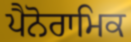
ਪੈਨੋਰਾਮਿਕ